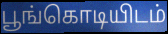
பூங்கொடியிடம்